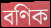
বণিক